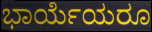
ಭಾರ್ಯೆಯರೂ